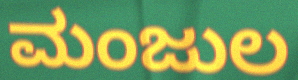
ಮಂಜುಲ